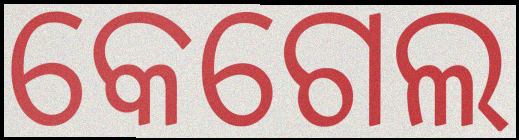
କେଗେଲ